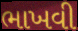
ભાખવી